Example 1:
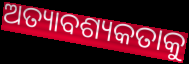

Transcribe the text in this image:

ଅତ୍ୟାବଶ୍ୟକତାକୁ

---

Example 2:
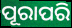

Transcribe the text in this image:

ପୂରାପରି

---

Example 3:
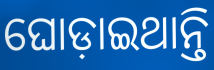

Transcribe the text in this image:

ଘୋଡ଼ାଇଥାନ୍ତି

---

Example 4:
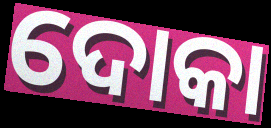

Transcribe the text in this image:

ଦୋକା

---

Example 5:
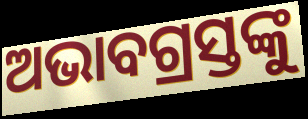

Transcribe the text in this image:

ଅଭାବଗ୍ରସ୍ତଙ୍କୁ